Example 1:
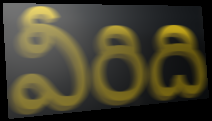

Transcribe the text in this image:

వీరిది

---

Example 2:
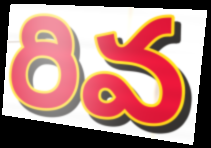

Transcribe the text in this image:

రివ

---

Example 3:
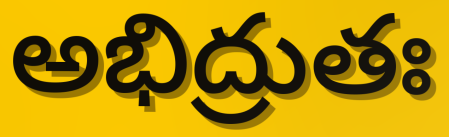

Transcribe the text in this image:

అభిద్రుతః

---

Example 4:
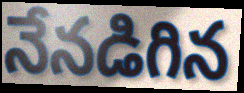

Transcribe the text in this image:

నేనడిగిన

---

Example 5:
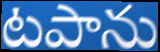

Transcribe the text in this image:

టపాను